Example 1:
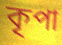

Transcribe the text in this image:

কৃপা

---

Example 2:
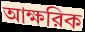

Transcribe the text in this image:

আক্ষরিক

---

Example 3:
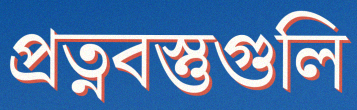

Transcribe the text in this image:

প্রত্নবস্তুগুলি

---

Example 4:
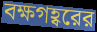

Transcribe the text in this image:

বক্ষগহ্বরের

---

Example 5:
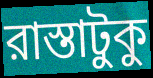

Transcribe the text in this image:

রাস্তাটুকু